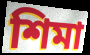
শিমা